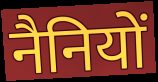
नैनियों